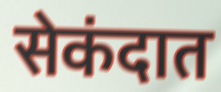
सेकंदात